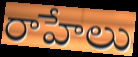
రాహేలు